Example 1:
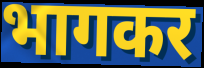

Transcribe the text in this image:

भागकर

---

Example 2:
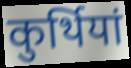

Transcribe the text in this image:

कुर्थियां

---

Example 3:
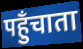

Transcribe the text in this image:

पहुँचाता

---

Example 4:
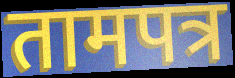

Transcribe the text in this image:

तामपत्र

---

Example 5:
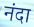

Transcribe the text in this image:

नंदा